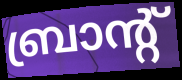
ബ്രാന്റ്